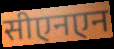
सीएनएन